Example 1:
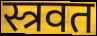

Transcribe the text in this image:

स्त्रवत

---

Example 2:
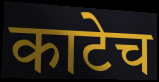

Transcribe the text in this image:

काटेच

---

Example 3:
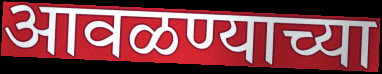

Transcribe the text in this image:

आवळण्याच्या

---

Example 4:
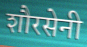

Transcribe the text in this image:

शौरसेनी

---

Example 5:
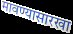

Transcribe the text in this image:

मावण्यासारखा